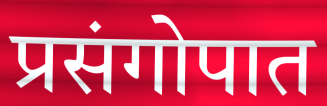
प्रसंगोपात